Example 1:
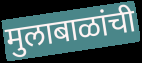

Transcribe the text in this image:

मुलाबाळांची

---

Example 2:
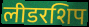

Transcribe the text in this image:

लीडरशिप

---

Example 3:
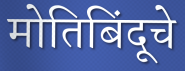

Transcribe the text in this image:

मोतिबिंदूचे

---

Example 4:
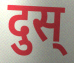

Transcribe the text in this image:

दुस्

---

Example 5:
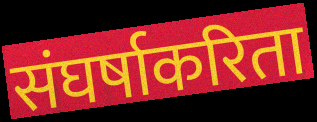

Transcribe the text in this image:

संघर्षाकरिता